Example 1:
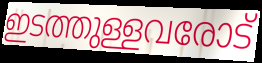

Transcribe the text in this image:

ഇടത്തുള്ളവരോട്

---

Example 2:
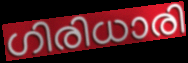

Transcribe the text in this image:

ഗിരിധാരി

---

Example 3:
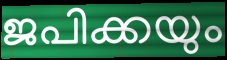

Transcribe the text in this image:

ജപിക്കയും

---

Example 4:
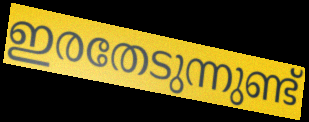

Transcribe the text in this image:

ഇരതേടുന്നുണ്ട്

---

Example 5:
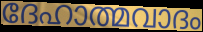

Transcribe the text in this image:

ദേഹാത്മവാദം